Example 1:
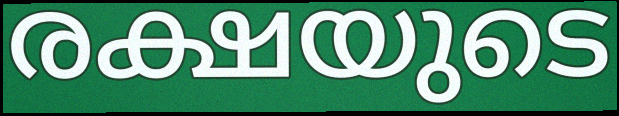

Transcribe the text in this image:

രക്ഷയുടെ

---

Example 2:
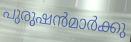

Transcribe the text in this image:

പുരുഷൻമാർക്കു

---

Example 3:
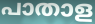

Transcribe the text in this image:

പാതാള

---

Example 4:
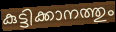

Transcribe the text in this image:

കുട്ടിക്കാനത്തും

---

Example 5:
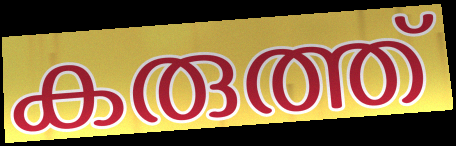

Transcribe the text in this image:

കരുത്ത്